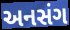
અનસંગ